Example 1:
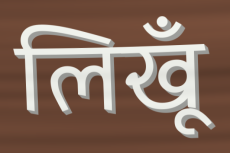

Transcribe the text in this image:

लिखूँ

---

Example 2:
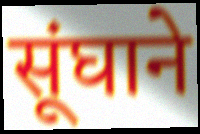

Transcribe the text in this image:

सूंघाने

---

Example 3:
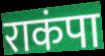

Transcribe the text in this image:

राकंपा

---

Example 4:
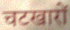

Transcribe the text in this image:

चटखारों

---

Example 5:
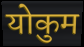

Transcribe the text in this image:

योकुम